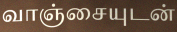
வாஞ்சையுடன்